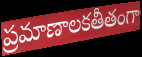
ప్రమాణాలకతీతంగా